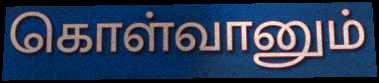
கொள்வானும்